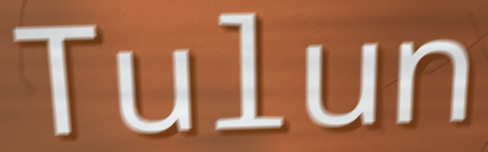
Tulun